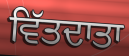
ਵਿੱਤਦਾਤਾ